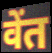
वेंत